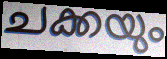
ചക്കയും